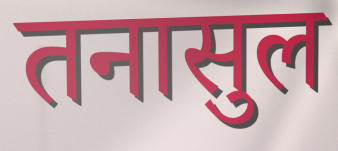
तनासुल